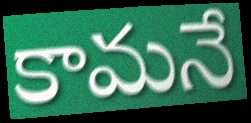
కామనే